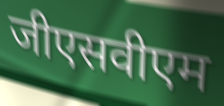
जीएसवीएम